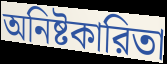
অনিষ্টকারিতা